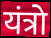
यंत्रो